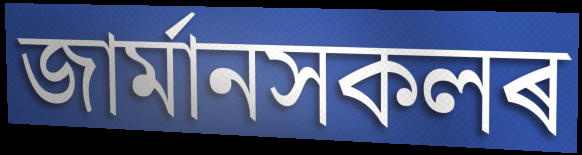
জাৰ্মানসকলৰ